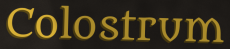
Colostrum